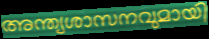
അന്ത്യശാസനവുമായി